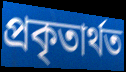
প্ৰকৃতাৰ্থত